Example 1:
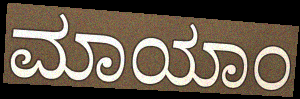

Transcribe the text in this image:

ಮಾಯಾಂ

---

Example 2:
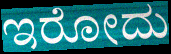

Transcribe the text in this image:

ಇರೋದು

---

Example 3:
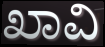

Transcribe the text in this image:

ಖಾವಿ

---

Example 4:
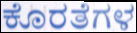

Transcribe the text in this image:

ಕೊರತೆಗಳ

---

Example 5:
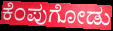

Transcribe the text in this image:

ಕೆಂಪುಗೋಡು